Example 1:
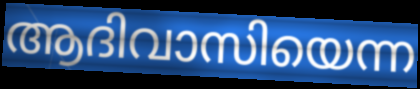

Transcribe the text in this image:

ആദിവാസിയെന്ന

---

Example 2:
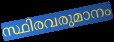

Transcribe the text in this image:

സ്ഥിരവരുമാനം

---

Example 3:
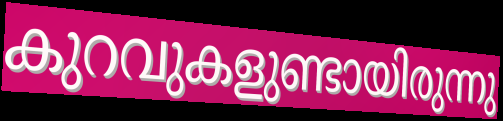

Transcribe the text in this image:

കുറവുകളുണ്ടായിരുന്നു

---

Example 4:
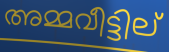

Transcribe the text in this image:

അമ്മവീട്ടില്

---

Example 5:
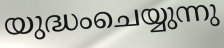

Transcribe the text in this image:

യുദ്ധംചെയ്യുന്നു